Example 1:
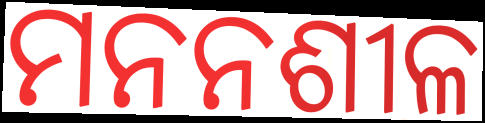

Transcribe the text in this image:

ମନନଶୀଳ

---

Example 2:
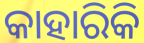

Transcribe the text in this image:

କାହାରିକି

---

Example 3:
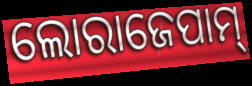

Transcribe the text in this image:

ଲୋରାଜେପାମ୍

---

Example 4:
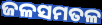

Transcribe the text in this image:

ଜଳସମତଳ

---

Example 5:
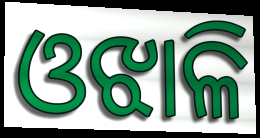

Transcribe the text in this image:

ଓଝାଳି